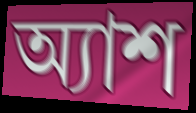
অ্যাশ